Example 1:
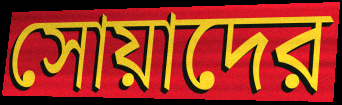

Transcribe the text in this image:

সোয়াদের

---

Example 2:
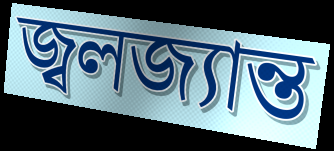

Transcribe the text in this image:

জ্বলজ্যান্ত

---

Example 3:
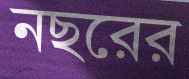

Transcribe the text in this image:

নছরের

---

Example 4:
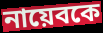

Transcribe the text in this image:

নায়েবকে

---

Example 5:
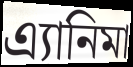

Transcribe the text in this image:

এ্যানিমা